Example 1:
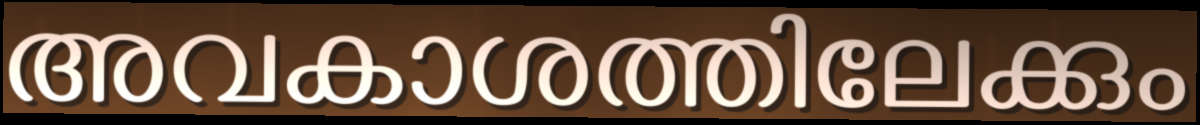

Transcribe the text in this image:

അവകാശത്തിലേക്കും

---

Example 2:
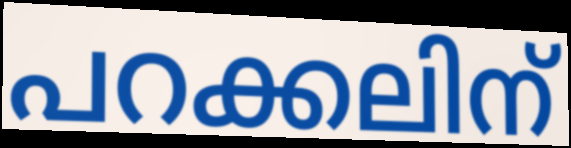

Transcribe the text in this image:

പറക്കലിന്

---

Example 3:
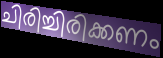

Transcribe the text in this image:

ചിരിച്ചിരിക്കണം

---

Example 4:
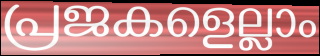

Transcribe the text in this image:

പ്രജകളെല്ലാം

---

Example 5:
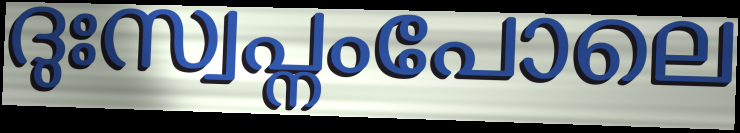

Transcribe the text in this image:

ദുഃസ്വപ്നംപോലെ